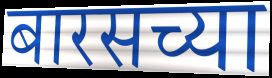
बारसच्या